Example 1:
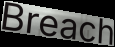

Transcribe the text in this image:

Breach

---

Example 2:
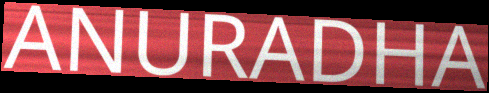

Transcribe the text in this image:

ANURADHA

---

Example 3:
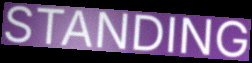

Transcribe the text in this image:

STANDING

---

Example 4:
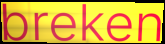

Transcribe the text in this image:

breken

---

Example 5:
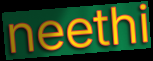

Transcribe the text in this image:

neethi